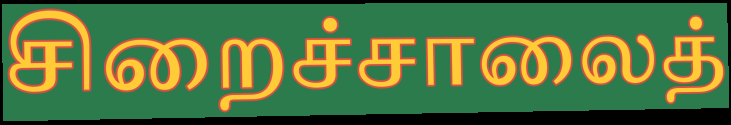
சிறைச்சாலைத்